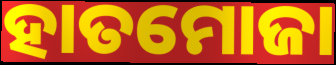
ହାତମୋଜା